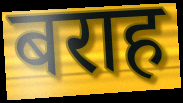
बराह